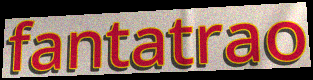
fantatrao